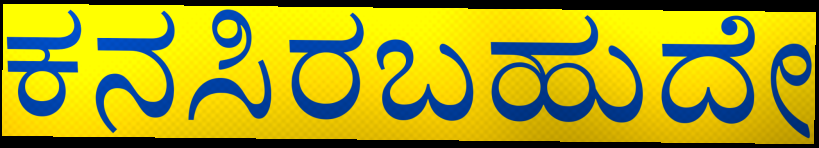
ಕನಸಿರಬಹುದೇ